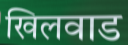
खिलवाड